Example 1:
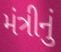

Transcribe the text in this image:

મંત્રીનું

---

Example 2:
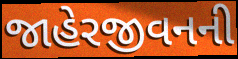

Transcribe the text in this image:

જાહેરજીવનની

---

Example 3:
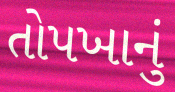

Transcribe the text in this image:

તોપખાનું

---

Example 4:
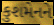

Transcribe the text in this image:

કુશમેનને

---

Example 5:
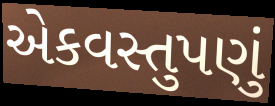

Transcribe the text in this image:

એકવસ્તુપણું